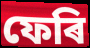
ফেৰি